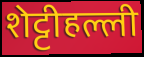
शेट्टीहल्ली